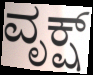
ವೃಕ್ಷ್